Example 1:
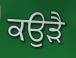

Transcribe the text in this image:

ਕਉੜੈ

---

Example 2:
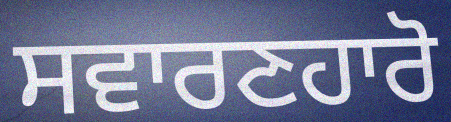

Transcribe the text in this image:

ਸਵਾਰਣਹਾਰੋ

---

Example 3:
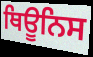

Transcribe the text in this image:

ਥਿਊਨਿਸ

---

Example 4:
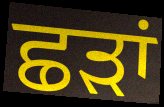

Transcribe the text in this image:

ਛੜਾਂ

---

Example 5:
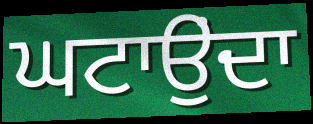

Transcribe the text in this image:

ਘਟਾਉੁਂਦਾ